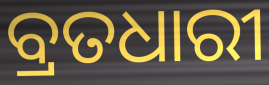
ବ୍ରତଧାରୀ